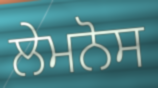
ਲੇਮਨੋਸ